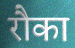
रौका